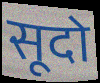
सूदो